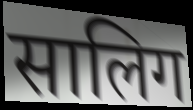
सालिग